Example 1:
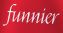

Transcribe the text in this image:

funnier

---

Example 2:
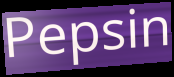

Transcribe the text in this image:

Pepsin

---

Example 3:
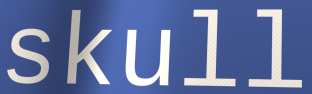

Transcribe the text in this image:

skull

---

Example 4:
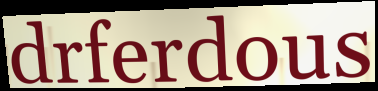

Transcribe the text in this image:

drferdous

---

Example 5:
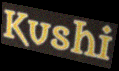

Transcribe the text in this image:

Kushi